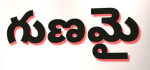
గుణమై